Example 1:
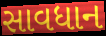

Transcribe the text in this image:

સાવધાન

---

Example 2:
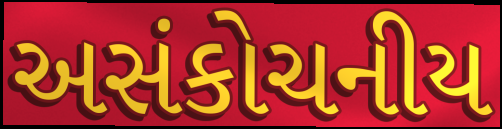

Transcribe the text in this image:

અસંકોચનીય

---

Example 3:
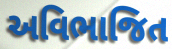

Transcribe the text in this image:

અવિભાજિત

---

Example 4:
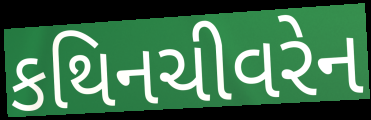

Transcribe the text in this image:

કથિનચીવરેન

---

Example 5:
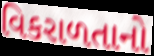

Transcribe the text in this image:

વિકરાળતાનો